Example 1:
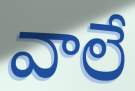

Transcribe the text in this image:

వాలే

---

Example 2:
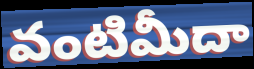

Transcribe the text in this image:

వంటిమీదా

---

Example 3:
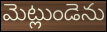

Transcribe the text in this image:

మెట్లుండెను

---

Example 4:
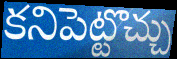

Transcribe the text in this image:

కనిపెట్టొచ్చు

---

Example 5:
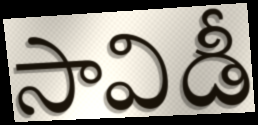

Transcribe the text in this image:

సావిడీ